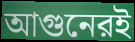
আগুনেরই